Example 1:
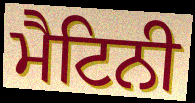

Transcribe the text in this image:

ਮੈਟਿਨੀ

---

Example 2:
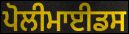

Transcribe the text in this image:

ਪੋਲੀਮਾਈਡਸ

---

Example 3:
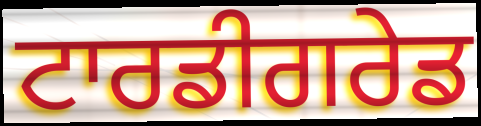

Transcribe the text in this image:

ਟਾਰਡੀਗਰੇਡ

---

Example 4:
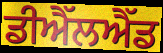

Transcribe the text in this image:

ਡੀਐੱਲਐੱਡ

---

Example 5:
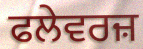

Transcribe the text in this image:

ਫਲੇਵਰਜ਼